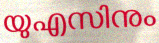
യുഎസിനും